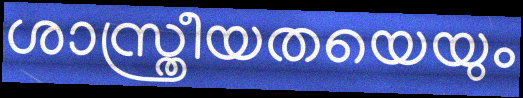
ശാസ്ത്രീയതയെയും